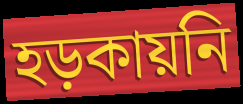
হড়কায়নি